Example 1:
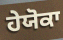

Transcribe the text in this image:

ਹੇਯੋਕਾ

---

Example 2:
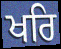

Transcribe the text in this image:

ਖਰਿ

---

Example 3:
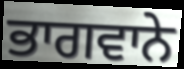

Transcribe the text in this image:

ਭਾਗਵਾਨੇ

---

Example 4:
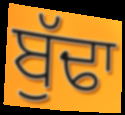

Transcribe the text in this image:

ਬੁੱਢਾ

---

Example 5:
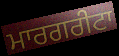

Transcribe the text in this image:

ਮਾਰਗਰੀਟਾ